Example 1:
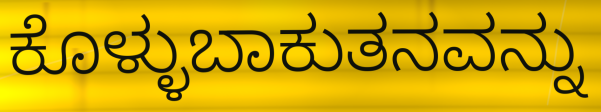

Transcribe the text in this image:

ಕೊಳ್ಳುಬಾಕುತನವನ್ನು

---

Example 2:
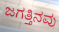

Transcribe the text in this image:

ಜಗತ್ತಿನವು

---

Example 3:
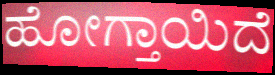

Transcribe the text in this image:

ಹೋಗ್ತಾಯಿದೆ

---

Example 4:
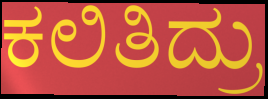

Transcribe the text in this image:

ಕಲಿತಿದ್ರು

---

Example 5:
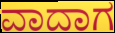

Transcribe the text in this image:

ವಾದಾಗ